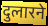
दुलारने